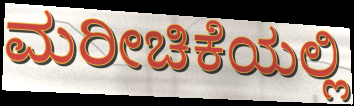
ಮರೀಚಿಕೆಯಲ್ಲಿ